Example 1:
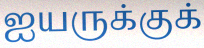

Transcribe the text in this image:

ஐயருக்குக்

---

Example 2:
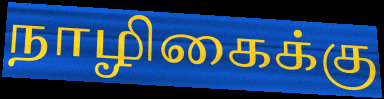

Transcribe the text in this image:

நாழிகைக்கு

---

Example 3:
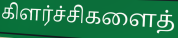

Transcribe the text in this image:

கிளர்ச்சிகளைத்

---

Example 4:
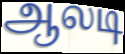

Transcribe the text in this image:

ஆலடி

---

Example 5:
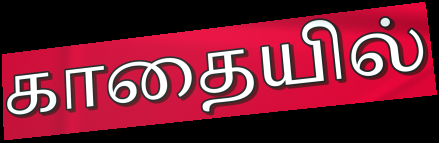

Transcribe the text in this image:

காதையில்